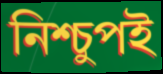
নিশ্চুপই